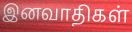
இனவாதிகள்